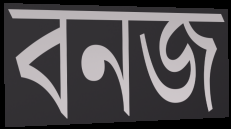
বনজ